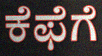
ಕೆಫೆಗೆ